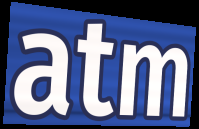
atm